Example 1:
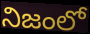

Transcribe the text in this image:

నిజంలో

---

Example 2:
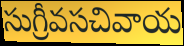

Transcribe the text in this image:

సుగ్రీవసచివాయ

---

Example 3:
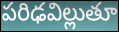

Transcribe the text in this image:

పరిఢవిల్లుతూ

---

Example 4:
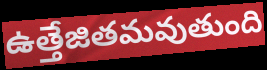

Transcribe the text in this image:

ఉత్తేజితమవుతుంది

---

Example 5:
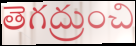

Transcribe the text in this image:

తెగద్రుంచి